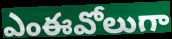
ఎంఈవోలుగా